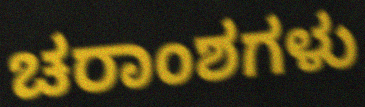
ಚರಾಂಶಗಳು